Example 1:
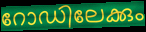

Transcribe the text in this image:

റോഡിലേക്കും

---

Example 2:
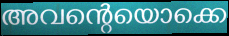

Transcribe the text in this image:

അവന്റെയൊക്കെ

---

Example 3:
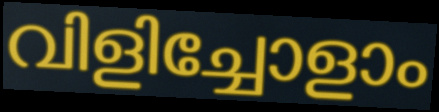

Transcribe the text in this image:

വിളിച്ചോളാം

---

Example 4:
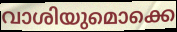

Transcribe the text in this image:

വാശിയുമൊക്കെ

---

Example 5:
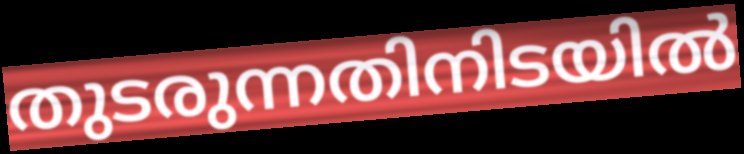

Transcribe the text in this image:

തുടരുന്നതിനിടയിൽ